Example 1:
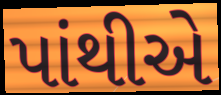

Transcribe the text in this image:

પાંથીએ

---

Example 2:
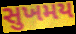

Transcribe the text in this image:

સુખમય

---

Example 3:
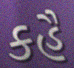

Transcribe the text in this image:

કહૈ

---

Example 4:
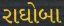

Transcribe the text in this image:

રાઘોબા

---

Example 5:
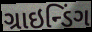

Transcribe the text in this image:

ગ્રાઇન્ડિંગ